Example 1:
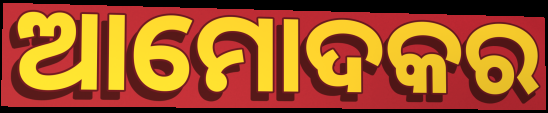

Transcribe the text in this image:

ଆମୋଦକର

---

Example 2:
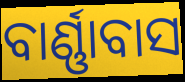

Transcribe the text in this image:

ବାର୍ଣ୍ଣାବାସ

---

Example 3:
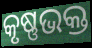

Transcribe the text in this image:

କୃଷ୍ଣଭକ୍ତ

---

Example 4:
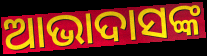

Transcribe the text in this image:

ଆଭାଦାସଙ୍କ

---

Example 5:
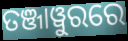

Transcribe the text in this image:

ତଞ୍ଜାୱୁରରେ